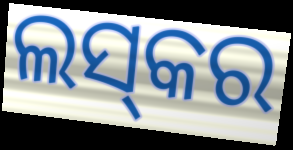
ଲସ୍‌କର